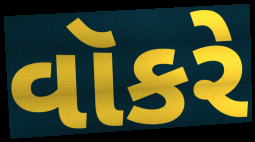
વૉકરે